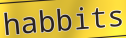
habbits